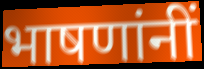
भाषणांनीं